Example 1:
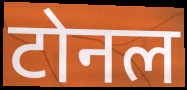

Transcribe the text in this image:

टोनल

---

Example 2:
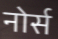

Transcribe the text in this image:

नोर्स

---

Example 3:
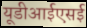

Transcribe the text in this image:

यूडीआईएसई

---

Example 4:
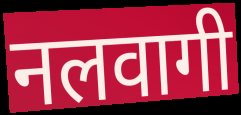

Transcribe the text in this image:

नलवागी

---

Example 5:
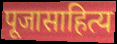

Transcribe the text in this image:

पूजासाहित्य